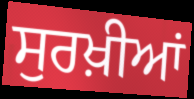
ਸੁਰਖ਼ੀਆਂ